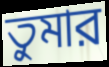
তুমার